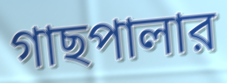
গাছপালার